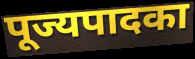
पूज्यपादका